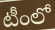
టీంలో